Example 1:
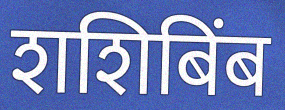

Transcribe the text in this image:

शशिबिंब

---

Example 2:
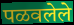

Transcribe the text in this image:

पळवलेले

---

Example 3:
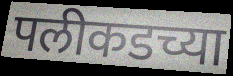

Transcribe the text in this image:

पलीकडच्या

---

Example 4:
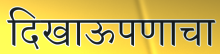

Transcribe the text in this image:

दिखाऊपणाचा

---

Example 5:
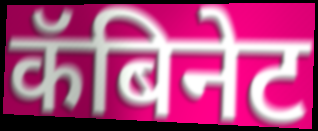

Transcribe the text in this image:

कॅबिनेट